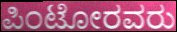
ಪಿಂಟೋರವರು